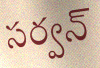
సర్వన్